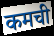
कमची